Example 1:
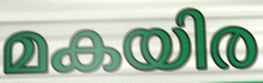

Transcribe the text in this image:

മകയിര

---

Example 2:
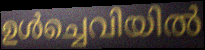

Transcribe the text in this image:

ഉൾച്ചെവിയിൽ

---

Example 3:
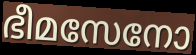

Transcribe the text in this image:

ഭീമസേനോ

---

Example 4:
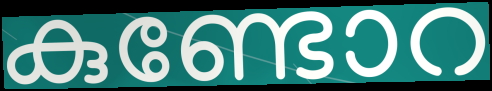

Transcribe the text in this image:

കുണ്ടോറ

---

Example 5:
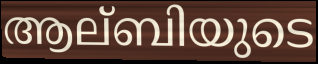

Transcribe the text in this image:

ആല്ബിയുടെ